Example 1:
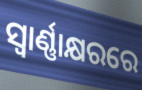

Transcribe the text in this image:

ସ୍ୱାର୍ଣ୍ଣାକ୍ଷରରେ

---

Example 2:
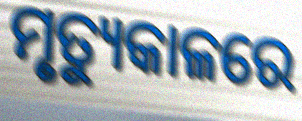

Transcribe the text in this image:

ମୃତ୍ୟୁକାଳରେ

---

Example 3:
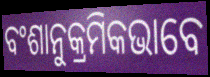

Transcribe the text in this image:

ବଂଶାନୁକ୍ରମିକଭାବେ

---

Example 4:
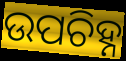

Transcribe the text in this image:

ଉପଚିହ୍ନ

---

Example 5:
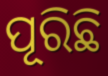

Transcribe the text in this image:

ପୂରିଛି